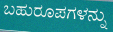
ಬಹುರೂಪಗಳನ್ನು